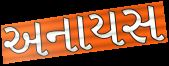
અનાયસ